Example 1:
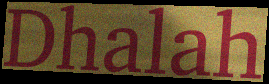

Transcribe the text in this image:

Dhalah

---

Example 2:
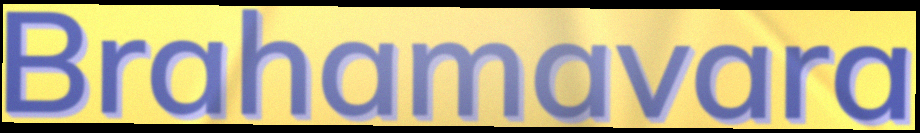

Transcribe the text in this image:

Brahamavara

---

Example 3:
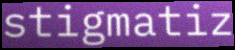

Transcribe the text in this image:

stigmatiz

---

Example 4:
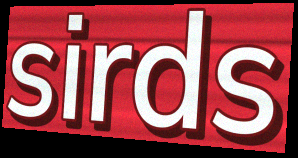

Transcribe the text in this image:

sirds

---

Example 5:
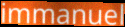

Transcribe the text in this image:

immanuel